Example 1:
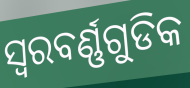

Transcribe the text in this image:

ସ୍ୱରବର୍ଣ୍ଣଗୁଡିକ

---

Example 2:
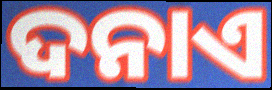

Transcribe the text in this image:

ଦନାଏ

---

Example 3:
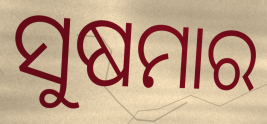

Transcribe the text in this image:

ସୁଷମାର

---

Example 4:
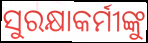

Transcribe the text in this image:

ସୁରକ୍ଷାକର୍ମୀଙ୍କୁ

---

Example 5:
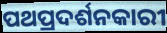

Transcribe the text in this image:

ପଥପ୍ରଦର୍ଶନକାରୀ